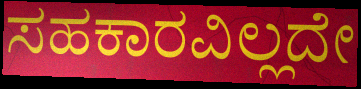
ಸಹಕಾರವಿಲ್ಲದೇ